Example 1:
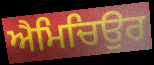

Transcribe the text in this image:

ਐਮਿਚਿਉਰ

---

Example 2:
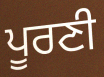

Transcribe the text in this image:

ਪੂਰਣੀ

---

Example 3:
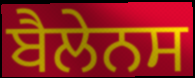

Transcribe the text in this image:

ਬੈਲੇਨਸ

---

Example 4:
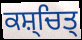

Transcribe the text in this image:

ਕਸ਼੍ਚਿਤ੍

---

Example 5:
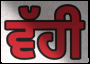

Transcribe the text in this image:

ਵੱਹੀ